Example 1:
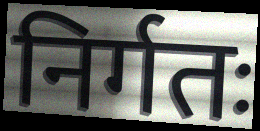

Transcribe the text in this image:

निर्गतः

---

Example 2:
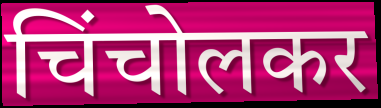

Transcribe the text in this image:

चिंचोलकर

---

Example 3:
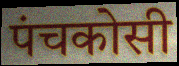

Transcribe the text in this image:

पंचकोसी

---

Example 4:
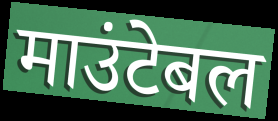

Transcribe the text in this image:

माउंटेबल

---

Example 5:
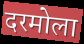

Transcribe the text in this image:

दरमोला